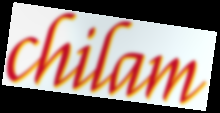
chilam